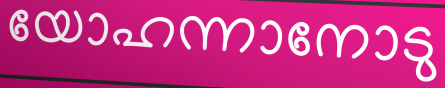
യോഹന്നാനോടു